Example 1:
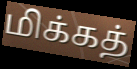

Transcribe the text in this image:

மிக்கத்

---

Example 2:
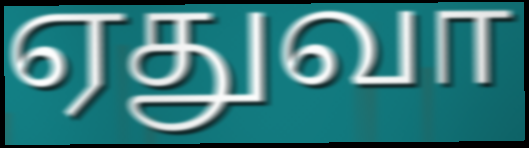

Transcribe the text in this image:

ஏதுவா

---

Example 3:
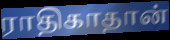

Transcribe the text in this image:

ராதிகாதான்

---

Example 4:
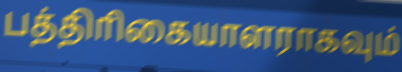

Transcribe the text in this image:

பத்திரிகையாளராகவும்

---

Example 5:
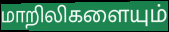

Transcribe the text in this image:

மாறிலிகளையும்